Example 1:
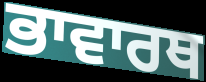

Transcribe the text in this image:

ਭਾਵਾਰਥ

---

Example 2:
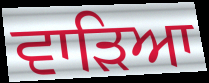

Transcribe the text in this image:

ਵਾੜਿਆ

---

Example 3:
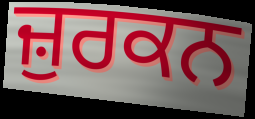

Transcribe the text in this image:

ਜ਼ੁਰਕਨ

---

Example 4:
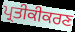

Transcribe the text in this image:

ਪ੍ਰਤੀਕੀਕਰਣ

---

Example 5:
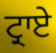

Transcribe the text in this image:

ਟ੍ਰਾਏ